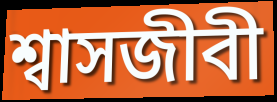
শ্বাসজীবী